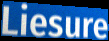
Liesure